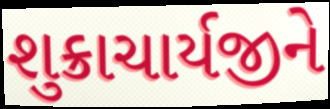
શુક્રાચાર્યજીને